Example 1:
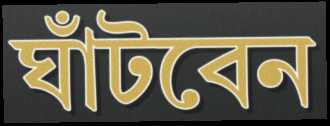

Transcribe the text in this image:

ঘাঁটবেন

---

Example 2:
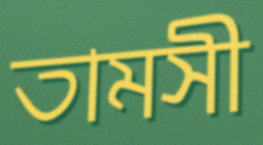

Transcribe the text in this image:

তামসী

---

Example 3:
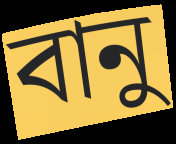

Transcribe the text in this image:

বানু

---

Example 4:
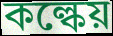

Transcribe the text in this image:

কল্কেয়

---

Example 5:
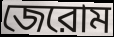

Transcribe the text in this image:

জেরোম